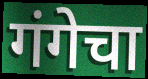
गंगेचा